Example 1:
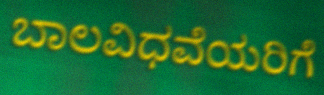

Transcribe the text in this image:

ಬಾಲವಿಧವೆಯರಿಗೆ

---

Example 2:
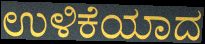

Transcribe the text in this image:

ಉಳಿಕೆಯಾದ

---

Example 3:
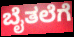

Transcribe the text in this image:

ಬೈತಲೆಗೆ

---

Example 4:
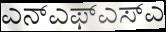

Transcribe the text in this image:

ಎನ್ಎಫ್ಎಸ್ಎ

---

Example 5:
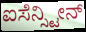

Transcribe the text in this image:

ಐಸೆನ್ಸ್ಟೀನ್